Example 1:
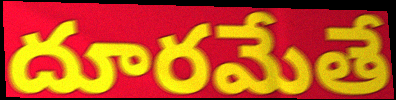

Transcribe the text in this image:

దూరమేతే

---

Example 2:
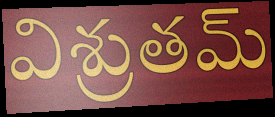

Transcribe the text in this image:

విశ్రుతమ్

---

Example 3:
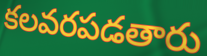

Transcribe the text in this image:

కలవరపడతారు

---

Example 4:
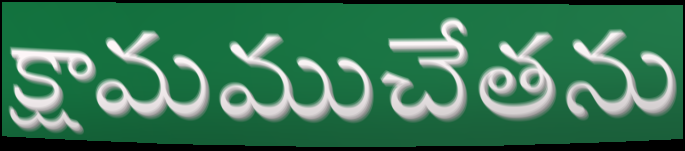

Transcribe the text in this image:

క్షామముచేతను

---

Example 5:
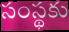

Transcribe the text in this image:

సంస్థకు